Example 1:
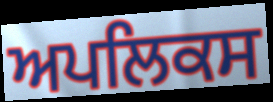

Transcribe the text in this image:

ਅਪਲਿਕਸ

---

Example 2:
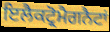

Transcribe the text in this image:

ਇਲੈਕਟ੍ਰੋਮੈਗਨੈਟਾਂ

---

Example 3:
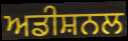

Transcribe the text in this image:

ਅਡੀਸ਼ਨਲ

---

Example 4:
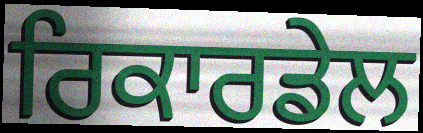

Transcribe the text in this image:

ਰਿਕਾਰਡੇਲ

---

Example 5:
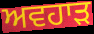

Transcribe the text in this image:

ਅਵਹਾੜ